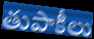
తుపాకీలు